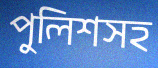
পুলিশসহ